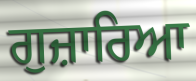
ਗੁਜ਼ਾਰਿਆ